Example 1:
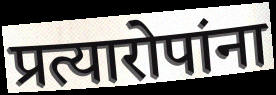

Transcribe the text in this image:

प्रत्यारोपांना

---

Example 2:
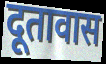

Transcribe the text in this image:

दूतावास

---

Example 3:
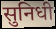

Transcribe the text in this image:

सुनिधी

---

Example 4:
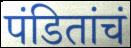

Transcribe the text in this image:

पंडितांचं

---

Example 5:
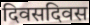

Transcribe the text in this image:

दिवसदिवस